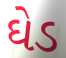
ઘેડ